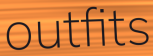
outfits